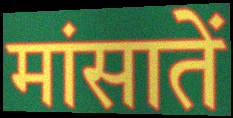
मांसातें